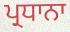
ਪ੍ਰਧਾਨਾ